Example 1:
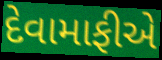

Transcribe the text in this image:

દેવામાફીએ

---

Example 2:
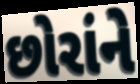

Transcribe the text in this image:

છોરાંને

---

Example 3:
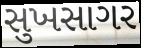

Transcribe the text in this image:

સુખસાગર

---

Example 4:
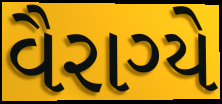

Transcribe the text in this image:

વૈરાગ્યે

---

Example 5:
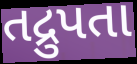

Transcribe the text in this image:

તદ્રુપતા